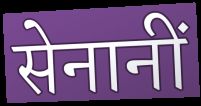
सेनानीं